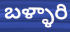
బళ్ళారి